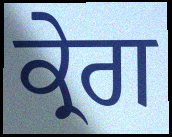
ਕ੍ਰੇਗ